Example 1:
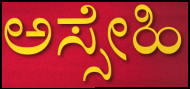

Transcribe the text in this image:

ಅಸ್ಸೇಹಿ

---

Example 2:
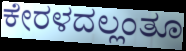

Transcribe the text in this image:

ಕೇರಳದಲ್ಲಂತೂ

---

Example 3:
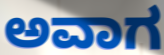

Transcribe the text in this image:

ಅವಾಗ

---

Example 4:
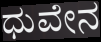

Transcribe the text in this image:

ಧುವೇನ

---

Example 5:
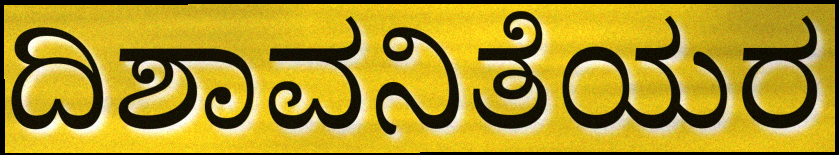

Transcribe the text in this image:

ದಿಶಾವನಿತೆಯರ